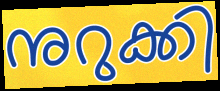
നുറുക്കി